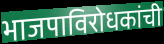
भाजपाविरोधकांची